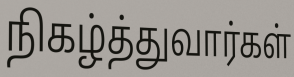
நிகழ்த்துவார்கள்